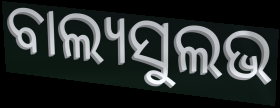
ବାଲ୍ୟସୁଲଭ